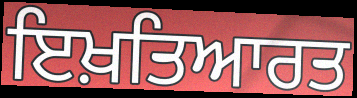
ਇਖ਼ਤਿਆਰਤ